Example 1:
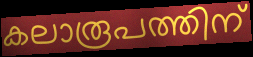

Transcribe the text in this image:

കലാരൂപത്തിന്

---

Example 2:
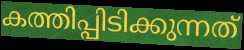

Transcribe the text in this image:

കത്തിപ്പിടിക്കുന്നത്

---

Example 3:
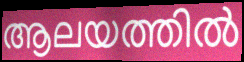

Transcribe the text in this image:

ആലയത്തിൽ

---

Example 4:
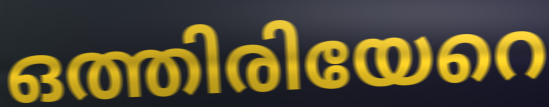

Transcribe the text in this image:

ഒത്തിരിയേറെ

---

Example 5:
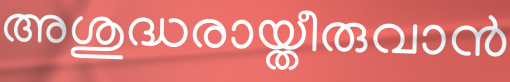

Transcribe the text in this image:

അശുദ്ധരായ്തീരുവാൻ